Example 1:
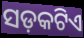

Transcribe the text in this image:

ସଡ଼କଟିଏ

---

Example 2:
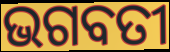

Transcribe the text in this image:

ଭଗବତୀ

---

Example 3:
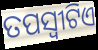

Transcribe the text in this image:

ତପସ୍ୱୀଟିଏ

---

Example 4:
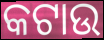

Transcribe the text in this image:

କଟାଉ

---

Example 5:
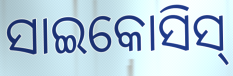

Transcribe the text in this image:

ସାଇକୋସିସ୍